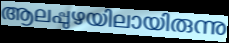
ആലപ്പുഴയിലായിരുന്നു